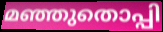
മഞ്ഞുതൊപ്പി